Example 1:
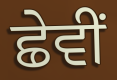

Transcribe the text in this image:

ਛੇਵੀਂ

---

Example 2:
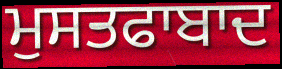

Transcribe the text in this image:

ਮੁਸਤਫਾਬਾਦ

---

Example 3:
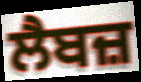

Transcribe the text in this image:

ਲੈਬਜ਼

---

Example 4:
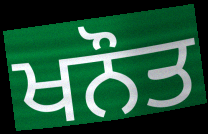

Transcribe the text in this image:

ਖਨੌਤ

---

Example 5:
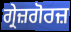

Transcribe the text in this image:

ਗ੍ਰੇਜ਼ਗੋਰਜ਼